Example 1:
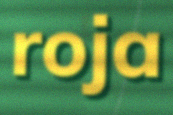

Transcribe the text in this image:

roja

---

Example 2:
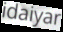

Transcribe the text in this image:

idaiyar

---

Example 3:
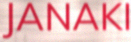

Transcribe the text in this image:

JANAKI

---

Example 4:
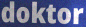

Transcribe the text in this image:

doktor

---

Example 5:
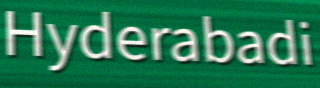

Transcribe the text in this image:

Hyderabadi